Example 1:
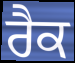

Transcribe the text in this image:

ਰੈਕ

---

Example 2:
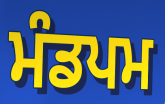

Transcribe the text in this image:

ਮੰਡਪਮ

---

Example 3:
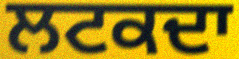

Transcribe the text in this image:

ਲਟਕਦਾ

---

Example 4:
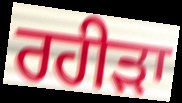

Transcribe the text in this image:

ਰਹੀੜਾ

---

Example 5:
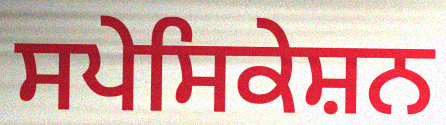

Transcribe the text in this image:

ਸਪੇਸਿਕੇਸ਼ਨ